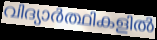
വിദ്യാർത്ഥികളിൽ